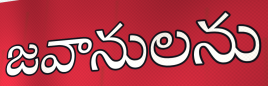
జవానులను